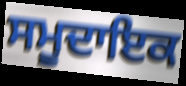
ਸਮੂਦਾਇਕ